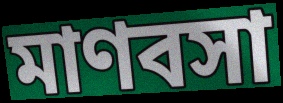
মাণবসা